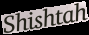
Shishtah